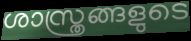
ശാസ്ത്രങ്ങളുടെ